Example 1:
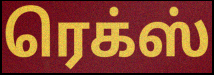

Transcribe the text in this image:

ரெக்ஸ்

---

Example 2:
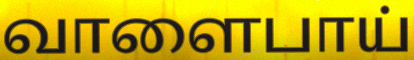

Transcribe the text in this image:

வாளைபாய்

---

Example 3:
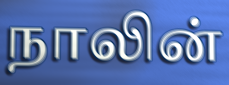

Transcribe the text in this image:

நாலின்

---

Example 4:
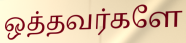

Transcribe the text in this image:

ஒத்தவர்களே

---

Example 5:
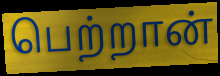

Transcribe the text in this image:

பெற்றான்